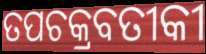
ତପଚକ୍ରବତୀକୀ